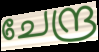
ചേന്ദ്ര